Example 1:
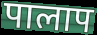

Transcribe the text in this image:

पालाप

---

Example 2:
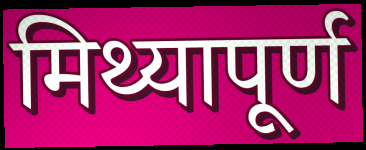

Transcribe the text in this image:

मिथ्यापूर्ण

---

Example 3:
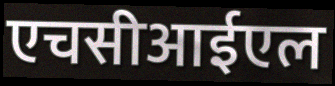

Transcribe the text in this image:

एचसीआईएल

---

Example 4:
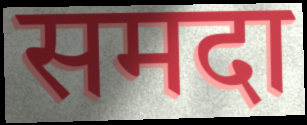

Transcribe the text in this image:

समदा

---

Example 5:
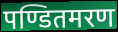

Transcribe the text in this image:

पण्डितमरण